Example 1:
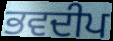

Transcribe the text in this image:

ਭਵਦੀਪ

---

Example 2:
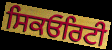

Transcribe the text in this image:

ਸਿਕਓਰਿਟੀ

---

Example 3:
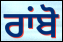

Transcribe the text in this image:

ਰਾਂਬੋ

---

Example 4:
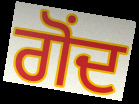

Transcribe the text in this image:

ਗੋਂਦ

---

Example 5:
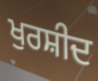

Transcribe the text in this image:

ਖੁਰਸ਼ੀਦ